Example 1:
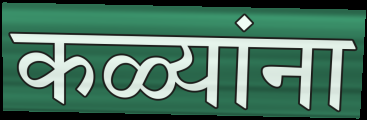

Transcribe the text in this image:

कळ्यांना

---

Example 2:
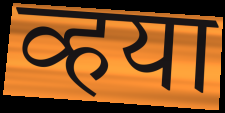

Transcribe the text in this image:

व्हया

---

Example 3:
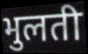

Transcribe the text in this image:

भुलती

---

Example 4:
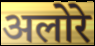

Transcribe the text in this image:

अलोरे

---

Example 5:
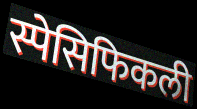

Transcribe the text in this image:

स्पेसिफिकली